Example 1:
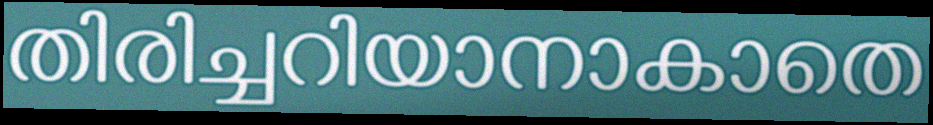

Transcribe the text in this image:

തിരിച്ചറിയാനാകാതെ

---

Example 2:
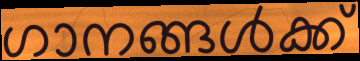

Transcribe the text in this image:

ഗാനങ്ങൾക്ക്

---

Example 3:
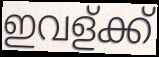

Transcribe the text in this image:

ഇവള്ക്ക്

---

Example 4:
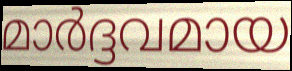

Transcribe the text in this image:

മാർദ്ദവമായ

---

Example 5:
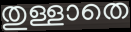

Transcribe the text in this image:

തുള്ളാതെ